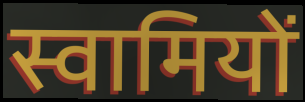
स्वामियों